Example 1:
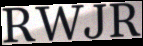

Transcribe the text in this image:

RWJR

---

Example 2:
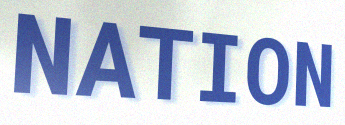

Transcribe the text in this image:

NATION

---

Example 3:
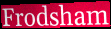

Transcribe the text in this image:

Frodsham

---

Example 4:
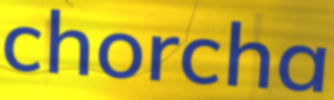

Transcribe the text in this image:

chorcha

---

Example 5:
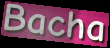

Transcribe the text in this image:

Bacha